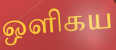
ஒளிகய